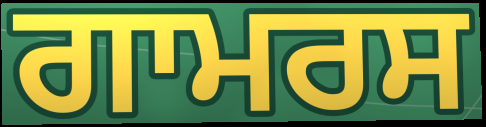
ਗਾਮਰਸ